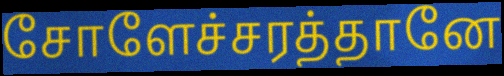
சோளேச்சரத்தானே